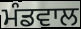
ਮੰਡਵਾਲ